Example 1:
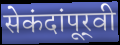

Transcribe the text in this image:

सेकंदांपूर्वी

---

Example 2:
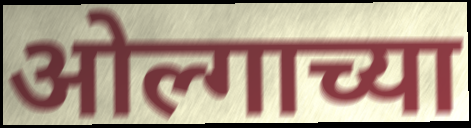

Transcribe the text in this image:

ओल्गाच्या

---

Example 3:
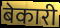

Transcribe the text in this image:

बेकारी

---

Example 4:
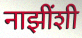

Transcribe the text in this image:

नाझींशी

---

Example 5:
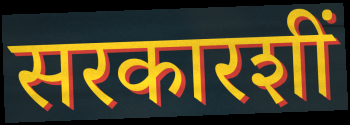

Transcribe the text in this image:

सरकारशीं